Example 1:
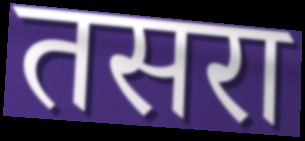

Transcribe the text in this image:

तसरा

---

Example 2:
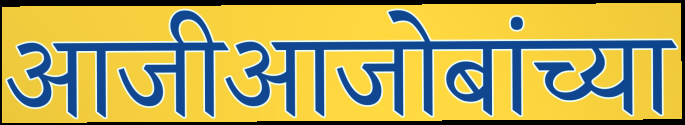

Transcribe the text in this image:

आजीआजोबांच्या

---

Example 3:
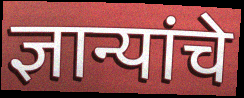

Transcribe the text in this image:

ज्ञान्यांचे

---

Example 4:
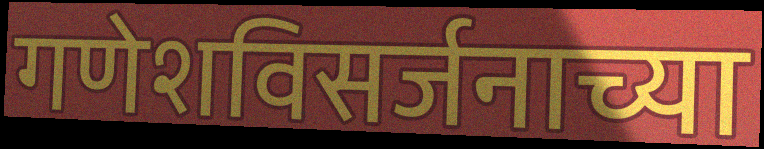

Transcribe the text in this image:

गणेशविसर्जनाच्या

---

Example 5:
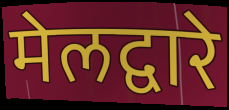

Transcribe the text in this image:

मेलद्वारे